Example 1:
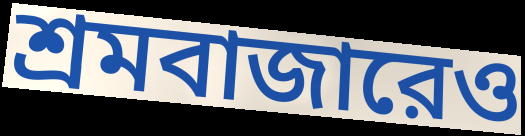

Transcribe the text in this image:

শ্রমবাজারেও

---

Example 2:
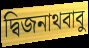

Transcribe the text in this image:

দ্বিজনাথবাবু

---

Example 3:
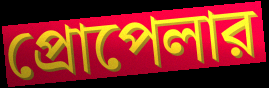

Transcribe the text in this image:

প্রোপেলার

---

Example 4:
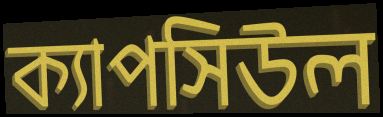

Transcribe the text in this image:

ক্যাপসিউল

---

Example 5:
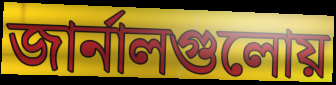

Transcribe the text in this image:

জার্নালগুলোয়